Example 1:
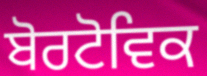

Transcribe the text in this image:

ਬੋਰਟੋਵਿਕ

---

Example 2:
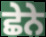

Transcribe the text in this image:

ਛੇਨੇ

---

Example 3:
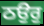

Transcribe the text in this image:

ਠਉਰੁ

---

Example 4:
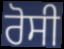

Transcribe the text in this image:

ਰੋਸੀ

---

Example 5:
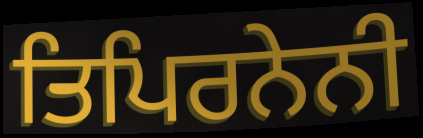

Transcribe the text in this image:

ਤਿਪਿਰਨੇਨੀ